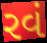
રવં